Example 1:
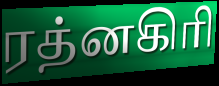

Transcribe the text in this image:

ரத்னகிரி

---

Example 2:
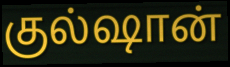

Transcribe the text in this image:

குல்ஷான்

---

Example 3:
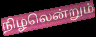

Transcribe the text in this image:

நிழலென்றும்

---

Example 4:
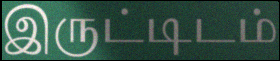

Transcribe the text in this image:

இருட்டிடம்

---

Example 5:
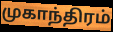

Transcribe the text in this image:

முகாந்திரம்